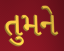
તુમને